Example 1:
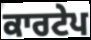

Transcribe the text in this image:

ਕਾਰਟੇਪ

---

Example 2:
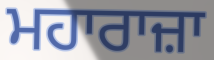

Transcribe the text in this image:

ਮਹਾਰਾਜ਼ਾ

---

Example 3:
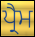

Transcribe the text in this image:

ਪ੍ਰੈਮ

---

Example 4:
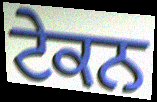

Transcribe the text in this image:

ਟੇਕਨ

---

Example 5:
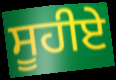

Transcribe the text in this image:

ਸੂਹੀਏ